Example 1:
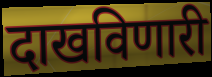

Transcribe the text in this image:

दाखविणारी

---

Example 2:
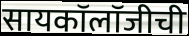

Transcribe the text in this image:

सायकॉलॉजीची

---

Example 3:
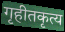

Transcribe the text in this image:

गृहीतकृत्य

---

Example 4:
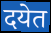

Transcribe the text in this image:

दयेत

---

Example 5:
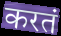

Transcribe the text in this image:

करतं